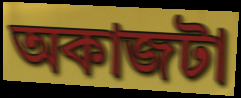
অকাজটা